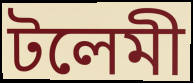
টলেমী